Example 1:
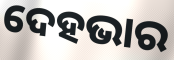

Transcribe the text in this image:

ଦେହଭାର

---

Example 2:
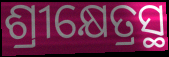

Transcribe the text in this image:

ଶ୍ରୀକ୍ଷେତ୍ରସ୍ଥ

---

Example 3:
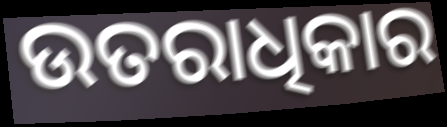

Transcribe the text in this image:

ଉତରାଧିକାର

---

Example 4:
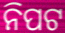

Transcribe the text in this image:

ନିପଟ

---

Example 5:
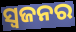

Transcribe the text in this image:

ସ୍ୱଜନର